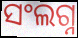
ସଂଲଗ୍ନ